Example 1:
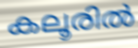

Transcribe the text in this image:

കലൂരിൽ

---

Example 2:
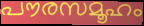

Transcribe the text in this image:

പൗരസമൂഹം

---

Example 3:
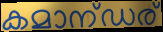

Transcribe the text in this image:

കമാന്ഡര്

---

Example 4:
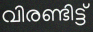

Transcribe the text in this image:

വിരണ്ടിട്ട്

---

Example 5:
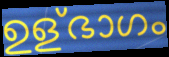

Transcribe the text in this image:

ഉള്ഭാഗം